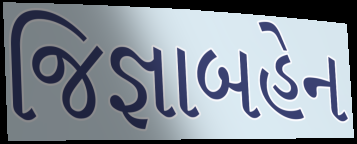
જિજ્ઞાબહેન